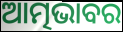
ଆତ୍ମଭାବର